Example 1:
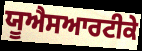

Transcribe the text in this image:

ਯੂਐਸਆਰਟੀਕੇ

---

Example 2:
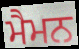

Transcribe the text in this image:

ਮੈਮਨ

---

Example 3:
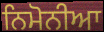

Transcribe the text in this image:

ਨਿਮੋਨੀਆ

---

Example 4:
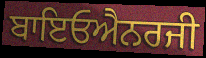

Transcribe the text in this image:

ਬਾਇਓਐਨਰਜੀ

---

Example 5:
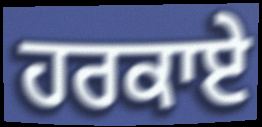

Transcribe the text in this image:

ਹਰਕਾਏ